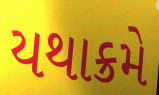
યથાક્રમે